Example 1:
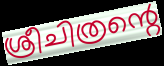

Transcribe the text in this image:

ശ്രീചിത്രന്റെ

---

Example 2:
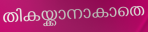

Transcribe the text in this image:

തികയ്ക്കാനാകാതെ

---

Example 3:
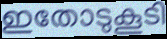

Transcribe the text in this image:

ഇതോടുകൂടി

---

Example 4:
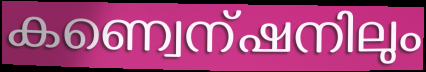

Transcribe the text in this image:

കണ്വെന്ഷനിലും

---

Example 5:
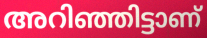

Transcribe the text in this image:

അറിഞ്ഞിട്ടാണ്